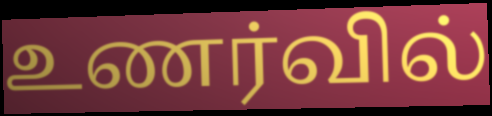
உணர்வில்